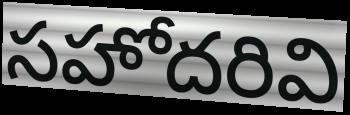
సహోదరివి